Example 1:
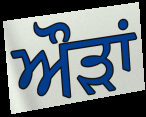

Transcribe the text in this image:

ਔੜਾਂ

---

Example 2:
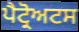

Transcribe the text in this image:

ਪੈਟ੍ਰੋਅਟਸ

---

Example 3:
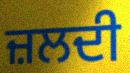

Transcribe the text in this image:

ਜ਼ਲਦੀ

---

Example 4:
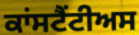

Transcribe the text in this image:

ਕਾਂਸਟੈਂਟੀਅਸ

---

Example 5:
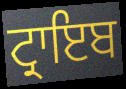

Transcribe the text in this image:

ਟ੍ਰਾਇਬ